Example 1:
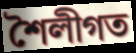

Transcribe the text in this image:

শৈলীগত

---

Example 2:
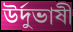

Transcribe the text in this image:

উর্দুভাষী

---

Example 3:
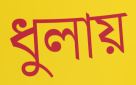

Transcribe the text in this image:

ধুলায়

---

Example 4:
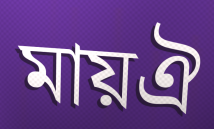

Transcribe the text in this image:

মায়ঐ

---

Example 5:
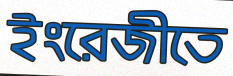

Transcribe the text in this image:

ইংরেজীতে